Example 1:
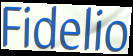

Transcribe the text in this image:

Fidelio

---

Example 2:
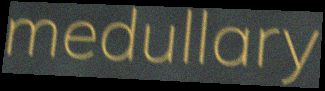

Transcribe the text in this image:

medullary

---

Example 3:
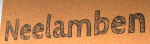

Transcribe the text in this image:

Neelamben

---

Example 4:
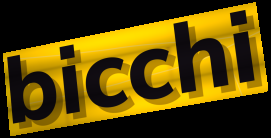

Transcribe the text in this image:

bicchi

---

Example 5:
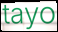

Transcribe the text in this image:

tayo